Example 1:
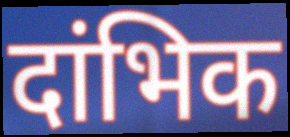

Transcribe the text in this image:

दांभिक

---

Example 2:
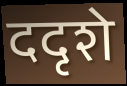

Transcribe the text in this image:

ददृशे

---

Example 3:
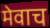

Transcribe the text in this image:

मेवाच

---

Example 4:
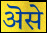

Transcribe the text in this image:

ऄसे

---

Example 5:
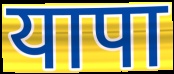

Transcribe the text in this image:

यापा